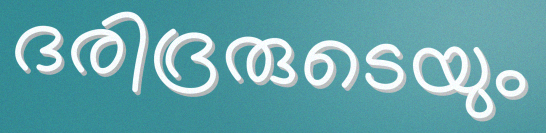
ദരിദ്രരുടെയും